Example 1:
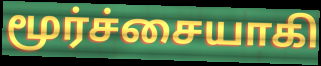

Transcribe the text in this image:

மூர்ச்சையாகி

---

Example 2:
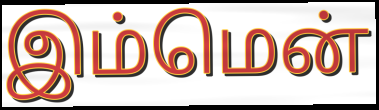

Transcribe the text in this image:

இம்மென்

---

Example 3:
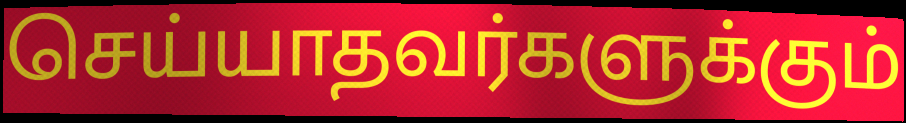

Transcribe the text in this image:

செய்யாதவர்களுக்கும்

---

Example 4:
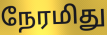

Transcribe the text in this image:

நேரமிது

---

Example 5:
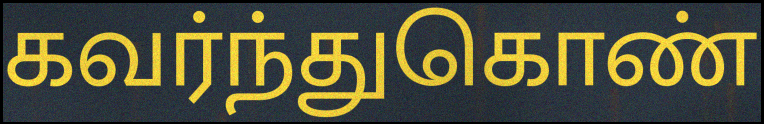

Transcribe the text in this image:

கவர்ந்துகொண்